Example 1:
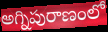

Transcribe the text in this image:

అగ్నిపురాణంలో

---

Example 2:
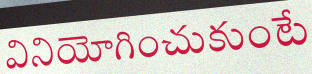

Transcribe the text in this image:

వినియోగించుకుంటే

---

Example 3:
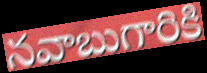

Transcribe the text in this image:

నవాబుగారికి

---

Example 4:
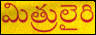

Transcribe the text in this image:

మిత్రులైరి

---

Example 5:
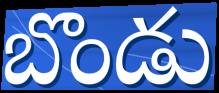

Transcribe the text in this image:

బొండు